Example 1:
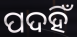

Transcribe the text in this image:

ପଦହିଁ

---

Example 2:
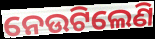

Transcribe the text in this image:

ନେଉଟିଲେଣି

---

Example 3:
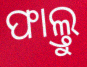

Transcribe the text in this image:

ଫାଲ୍ତୁ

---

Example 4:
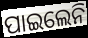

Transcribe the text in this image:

ପାଇଲେନି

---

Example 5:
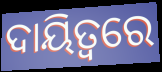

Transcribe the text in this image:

ଦାୟିତ୍ୱରେ